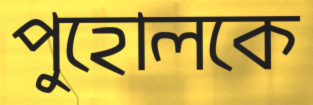
পুহোলকে